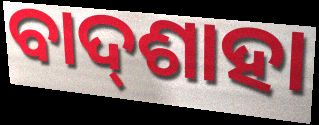
ବାଦ୍‌ଶାହା